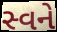
સ્વને